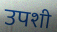
उपशी